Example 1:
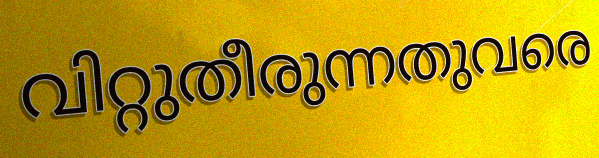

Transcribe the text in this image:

വിറ്റുതീരുന്നതുവരെ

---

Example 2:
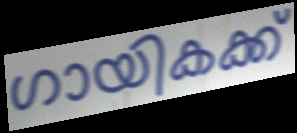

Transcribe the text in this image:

ഗായികക്ക്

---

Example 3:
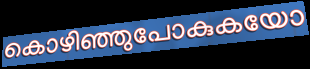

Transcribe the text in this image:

കൊഴിഞ്ഞുപോകുകയോ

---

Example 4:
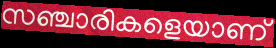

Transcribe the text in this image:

സഞ്ചാരികളെയാണ്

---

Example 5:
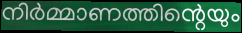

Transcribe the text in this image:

നിർമ്മാണത്തിന്റെയും